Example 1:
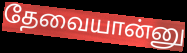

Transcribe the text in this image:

தேவையான்னு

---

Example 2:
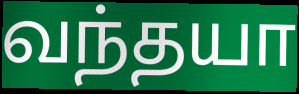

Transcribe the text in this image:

வந்தயா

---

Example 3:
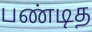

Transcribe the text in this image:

பண்டித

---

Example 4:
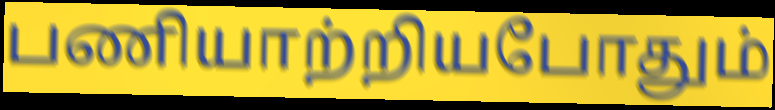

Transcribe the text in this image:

பணியாற்றியபோதும்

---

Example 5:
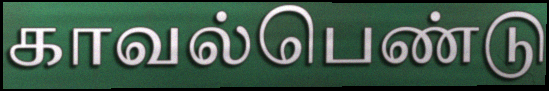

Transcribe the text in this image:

காவல்பெண்டு